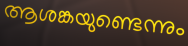
ആശങ്കയുണ്ടെന്നും